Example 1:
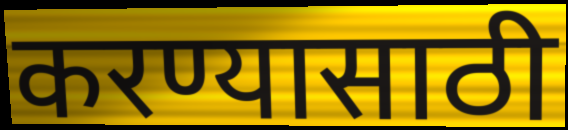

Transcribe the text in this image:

करण्यासाठी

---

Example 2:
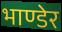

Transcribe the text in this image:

भाण्डेर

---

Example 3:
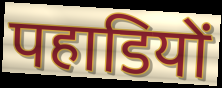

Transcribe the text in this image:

पहाडियों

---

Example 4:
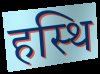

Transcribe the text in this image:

हस्थि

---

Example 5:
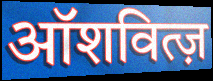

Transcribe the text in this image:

ऑशवित्ज़